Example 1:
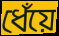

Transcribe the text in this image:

ধেঁয়ে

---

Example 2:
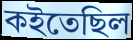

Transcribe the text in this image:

কইতেছিল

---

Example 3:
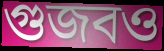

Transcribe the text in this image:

গুজবও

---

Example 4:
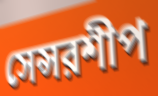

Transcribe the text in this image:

সেন্সরশীপ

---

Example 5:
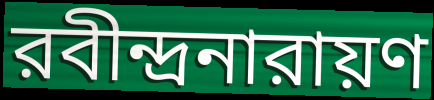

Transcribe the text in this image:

রবীন্দ্রনারায়ণ